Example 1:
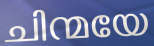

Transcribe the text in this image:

ചിന്മയേ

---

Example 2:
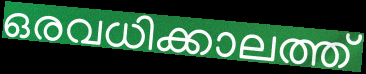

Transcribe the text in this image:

ഒരവധിക്കാലത്ത്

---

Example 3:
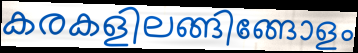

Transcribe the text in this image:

കരകളിലങ്ങിങ്ങോളം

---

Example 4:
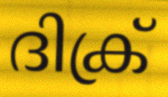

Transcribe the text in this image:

ദിക്ര്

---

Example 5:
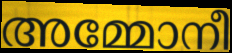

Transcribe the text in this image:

അമ്മോനീ